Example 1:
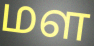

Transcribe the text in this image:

மள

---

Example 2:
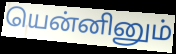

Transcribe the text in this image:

யென்னினும்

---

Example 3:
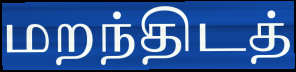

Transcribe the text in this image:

மறந்திடத்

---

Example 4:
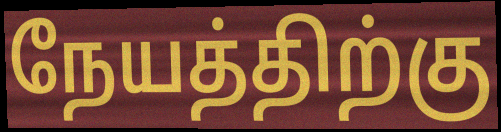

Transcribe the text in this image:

நேயத்திற்கு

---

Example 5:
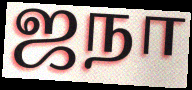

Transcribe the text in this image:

ஜநா